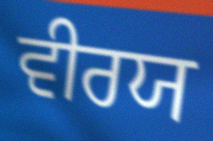
ਵੀਰਯ